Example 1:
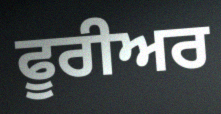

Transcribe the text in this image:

ਫੂਰੀਅਰ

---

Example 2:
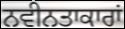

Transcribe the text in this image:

ਨਵੀਨਤਾਕਾਰਾਂ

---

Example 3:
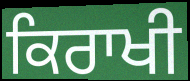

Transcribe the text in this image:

ਕਿਰਾਖੀ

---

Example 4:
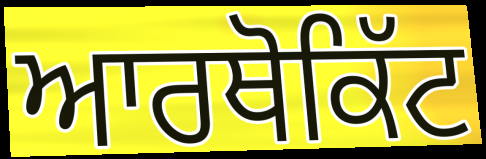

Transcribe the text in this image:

ਆਰਥੋਕਿੱਟ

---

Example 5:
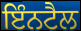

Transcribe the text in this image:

ਇੰਨਟੈਲ